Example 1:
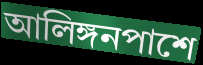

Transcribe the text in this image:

আলিঙ্গনপাশে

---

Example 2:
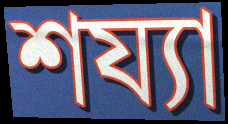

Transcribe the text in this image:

শয্যা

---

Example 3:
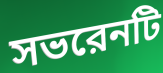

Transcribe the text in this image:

সভরেনটি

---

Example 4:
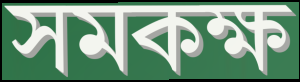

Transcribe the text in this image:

সমকক্ষ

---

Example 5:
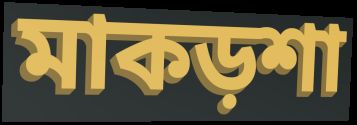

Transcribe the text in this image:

মাকড়শা